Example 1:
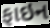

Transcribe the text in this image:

ફાઇન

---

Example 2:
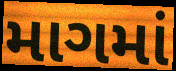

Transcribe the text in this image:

માગમાં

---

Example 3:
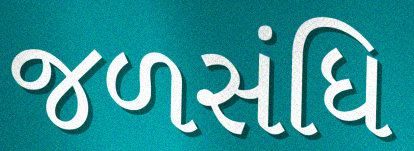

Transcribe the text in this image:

જળસંધિ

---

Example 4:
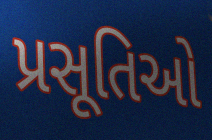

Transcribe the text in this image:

પ્રસૂતિઓ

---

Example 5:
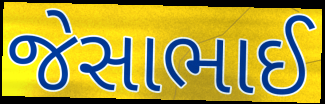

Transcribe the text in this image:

જેસાભાઈ